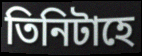
তিনিটাহে